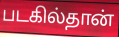
படகில்தான்